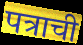
पत्राची